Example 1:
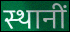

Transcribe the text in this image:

स्थानीं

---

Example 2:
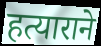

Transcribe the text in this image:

हत्याराने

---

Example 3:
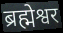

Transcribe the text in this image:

ब्रह्मेश्वर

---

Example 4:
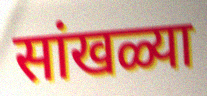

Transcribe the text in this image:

सांखळ्या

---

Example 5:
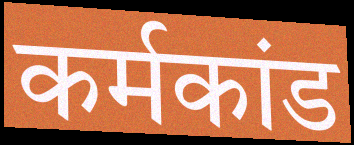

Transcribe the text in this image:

कर्मकांड